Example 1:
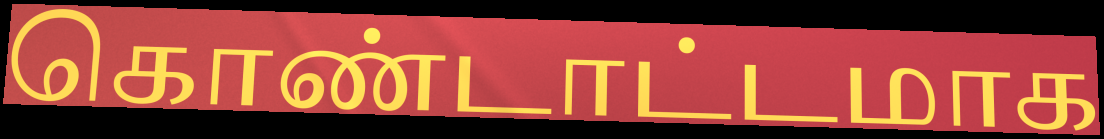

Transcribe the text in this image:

கொண்டாட்டமாக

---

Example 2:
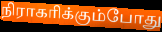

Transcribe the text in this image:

நிராகரிக்கும்போது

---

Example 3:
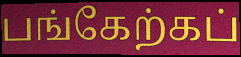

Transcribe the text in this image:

பங்கேற்கப்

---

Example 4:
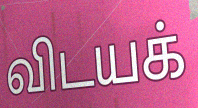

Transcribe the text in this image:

விடயக்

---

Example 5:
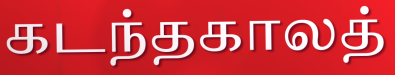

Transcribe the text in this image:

கடந்தகாலத்